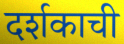
दर्शकाची